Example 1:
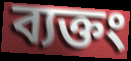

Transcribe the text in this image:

ব্যক্তং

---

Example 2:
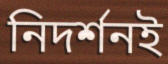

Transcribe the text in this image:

নিদর্শনই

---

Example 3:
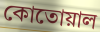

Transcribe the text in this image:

কোতোয়াল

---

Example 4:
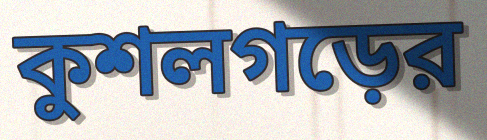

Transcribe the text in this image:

কুশলগড়ের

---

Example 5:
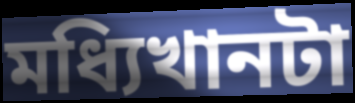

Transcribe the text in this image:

মধ্যিখানটা